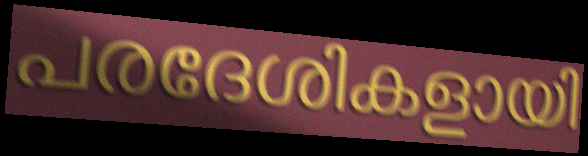
പരദേശികളായി